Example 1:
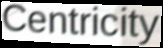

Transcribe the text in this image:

Centricity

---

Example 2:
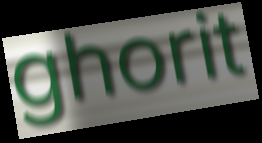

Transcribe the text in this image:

ghorit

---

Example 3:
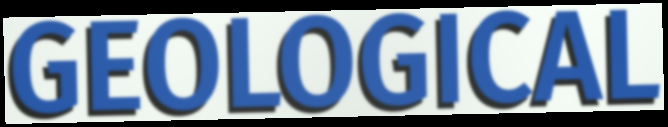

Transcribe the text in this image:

GEOLOGICAL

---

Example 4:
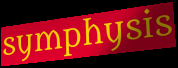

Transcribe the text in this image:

symphysis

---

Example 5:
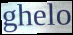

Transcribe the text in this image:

ghelo